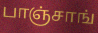
பாஞ்சாங்